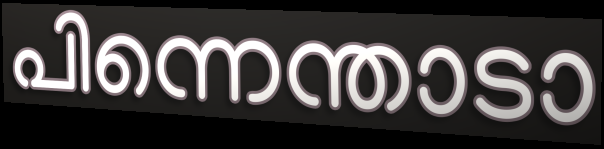
പിന്നെന്താടാ